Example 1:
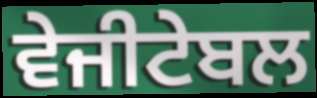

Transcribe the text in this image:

ਵੇਜੀਟੇਬਲ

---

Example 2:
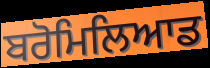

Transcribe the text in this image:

ਬਰੋਮਿਲਿਆਡ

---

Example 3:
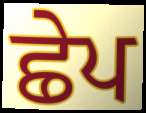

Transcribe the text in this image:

ਛੇਪ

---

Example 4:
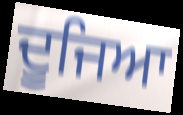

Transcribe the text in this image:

ਦੂਜਿਆ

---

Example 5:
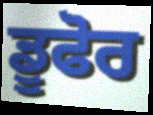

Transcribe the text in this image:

ਡੂਫੋਰ